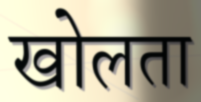
खोलता